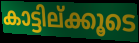
കാട്ടില്ക്കൂടെ